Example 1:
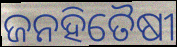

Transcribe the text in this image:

ଜନହିତୈଷୀ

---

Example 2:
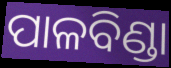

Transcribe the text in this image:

ପାଳବିଣ୍ଡା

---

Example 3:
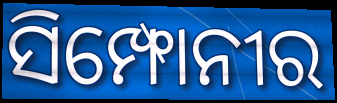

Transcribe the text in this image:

ସିମ୍ଫୋନୀର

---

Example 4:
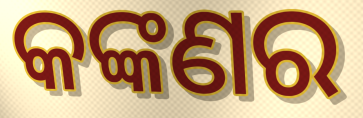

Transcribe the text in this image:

କଙ୍କଣର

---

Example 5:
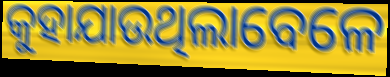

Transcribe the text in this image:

କୁହାଯାଉଥିଲାବେଳେ